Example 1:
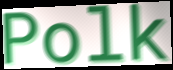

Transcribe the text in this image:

Polk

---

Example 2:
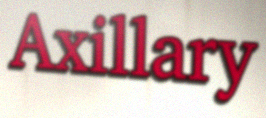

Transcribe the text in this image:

Axillary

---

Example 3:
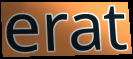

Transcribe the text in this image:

erat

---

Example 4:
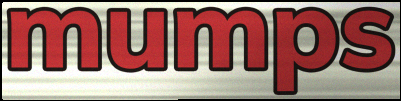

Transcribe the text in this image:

mumps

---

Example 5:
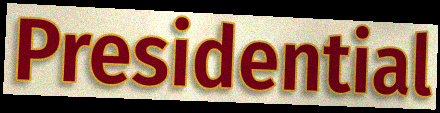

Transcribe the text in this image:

Presidential